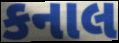
કનાલ